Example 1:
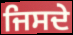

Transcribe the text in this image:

ਜਿਸਦੇ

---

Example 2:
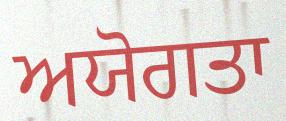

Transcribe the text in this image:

ਅਯੋਗਤਾ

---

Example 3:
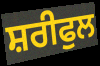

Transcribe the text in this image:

ਸ਼ਰੀਫੁਲ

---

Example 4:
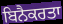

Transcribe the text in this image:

ਬਿਨੈਕਰਤਾ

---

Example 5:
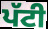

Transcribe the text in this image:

ਪੱਟੀ